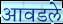
आवडले